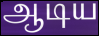
ஆடிய